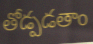
తోడ్పడతాం